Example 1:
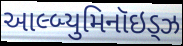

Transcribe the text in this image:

આલ્બ્યુમિનૉઇડ્ઝ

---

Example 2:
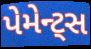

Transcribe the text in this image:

પેમેન્ટ્સ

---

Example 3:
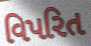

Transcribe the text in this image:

વિપરિત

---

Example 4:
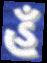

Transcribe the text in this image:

હઁ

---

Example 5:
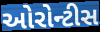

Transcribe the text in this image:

ઓરોન્ટીસ